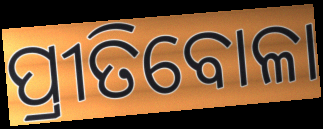
ପ୍ରୀତିବୋଳା